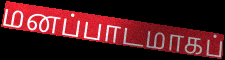
மனப்பாடமாகப்